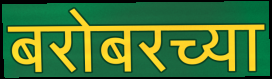
बरोबरच्या